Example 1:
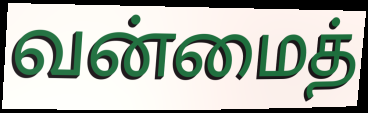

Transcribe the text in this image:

வன்மைத்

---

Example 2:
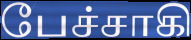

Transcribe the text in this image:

பேச்சாகி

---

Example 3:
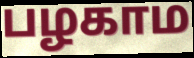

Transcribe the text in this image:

பழகாம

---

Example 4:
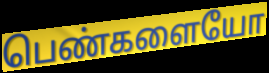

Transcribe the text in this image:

பெண்களையோ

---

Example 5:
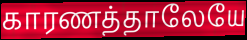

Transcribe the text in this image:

காரணத்தாலேயே